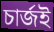
চার্জই